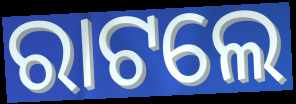
ରାଟଲେ